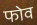
फोव